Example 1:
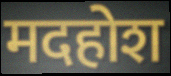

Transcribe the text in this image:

मदहोश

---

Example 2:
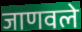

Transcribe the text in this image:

जाणवले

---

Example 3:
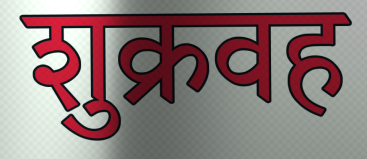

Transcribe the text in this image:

शुक्रवह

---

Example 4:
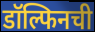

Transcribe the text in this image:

डॉल्फिनची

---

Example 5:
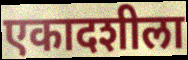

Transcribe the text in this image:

एकादशीला